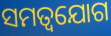
ସମତ୍ୱଯୋଗ